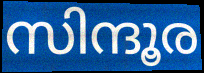
സിന്ദൂര